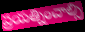
ప్రయత్నించాల్సి